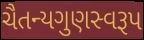
ચૈતન્યગુણસ્વરૂપ